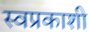
स्वप्रकाशी